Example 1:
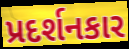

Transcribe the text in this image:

પ્રદર્શનકાર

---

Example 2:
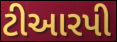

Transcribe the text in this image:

ટીઆરપી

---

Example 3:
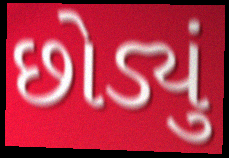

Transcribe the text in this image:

છોડ્યું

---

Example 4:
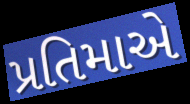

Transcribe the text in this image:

પ્રતિમાએ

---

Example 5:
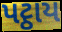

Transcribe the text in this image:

પટ્ઠાય